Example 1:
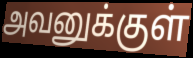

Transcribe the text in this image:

அவனுக்குள்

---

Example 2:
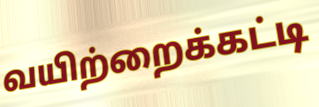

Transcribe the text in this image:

வயிற்றைக்கட்டி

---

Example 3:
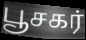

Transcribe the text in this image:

பூசகர்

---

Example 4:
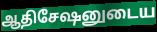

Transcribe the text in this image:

ஆதிசேஷனுடைய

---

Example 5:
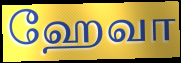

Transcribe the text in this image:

ஹேவா